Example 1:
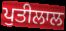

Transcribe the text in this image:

ਪੁਤੀਲਾਲ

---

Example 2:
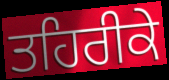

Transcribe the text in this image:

ਤਹਿਰੀਕੇ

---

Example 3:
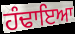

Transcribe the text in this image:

ਹੰਢਾਇਆ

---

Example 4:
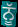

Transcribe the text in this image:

ਨੂੱ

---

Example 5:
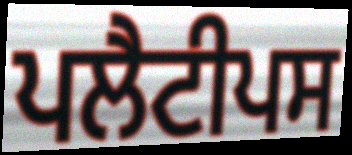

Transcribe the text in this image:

ਪਲੈਟੀਪਸ